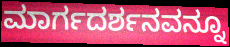
ಮಾರ್ಗದರ್ಶನವನ್ನೂ